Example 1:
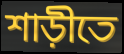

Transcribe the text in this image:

শাড়ীতে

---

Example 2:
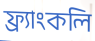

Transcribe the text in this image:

ফ্র্যাংকলি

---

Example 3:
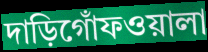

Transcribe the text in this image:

দাড়িগোঁফওয়ালা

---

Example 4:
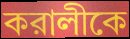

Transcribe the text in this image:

করালীকে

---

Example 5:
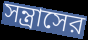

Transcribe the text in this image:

সন্ত্রাসের